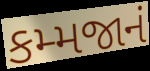
કમ્મજાનં